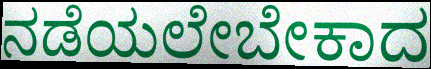
ನಡೆಯಲೇಬೇಕಾದ